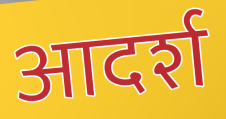
आदर्श